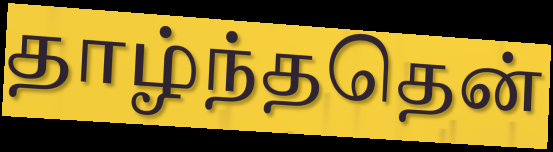
தாழ்ந்ததென்